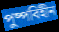
পুষ্পবিহীন